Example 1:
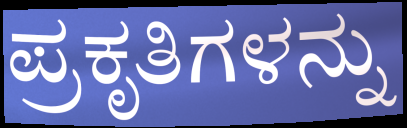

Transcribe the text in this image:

ಪ್ರಕೃತಿಗಳನ್ನು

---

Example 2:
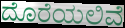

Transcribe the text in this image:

ದೊರೆಯಲಿವೆ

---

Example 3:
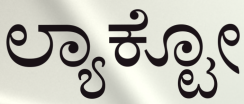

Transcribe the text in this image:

ಲ್ಯಾಕ್ಟೋ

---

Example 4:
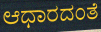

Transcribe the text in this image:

ಆಧಾರದಂತೆ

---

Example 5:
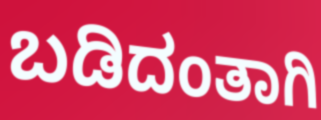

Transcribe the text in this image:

ಬಡಿದಂತಾಗಿ